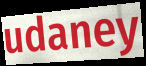
udaney